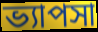
ভ্যাপসা